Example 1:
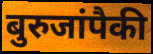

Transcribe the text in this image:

बुरुजांपैकी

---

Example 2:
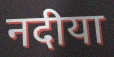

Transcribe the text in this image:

नदीया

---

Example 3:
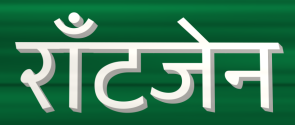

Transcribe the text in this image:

राँटजेन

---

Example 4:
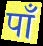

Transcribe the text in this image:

पाँ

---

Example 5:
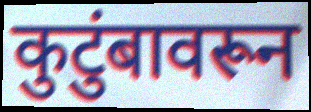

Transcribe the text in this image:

कुटुंबावरून